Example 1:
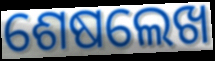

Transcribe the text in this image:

ଶେଷଲେଖ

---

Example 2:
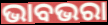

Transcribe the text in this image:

ଭାବଭରା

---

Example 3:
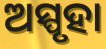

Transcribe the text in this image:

ଅସ୍ପୃହା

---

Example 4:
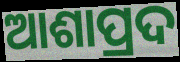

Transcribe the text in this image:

ଆଶାପ୍ରଦ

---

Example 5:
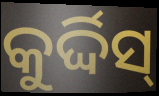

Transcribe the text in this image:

କୁର୍ଦ୍ଦିସ୍